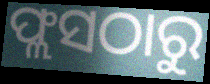
ଫ୍ଲସଠାରୁ